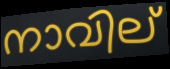
നാവില്